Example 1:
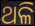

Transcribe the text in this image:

ଥଳି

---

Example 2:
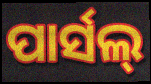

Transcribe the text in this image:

ପାର୍ସଲ୍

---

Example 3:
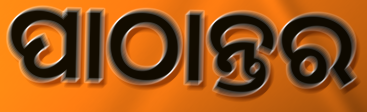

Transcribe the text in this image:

ପାଠାନ୍ତର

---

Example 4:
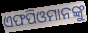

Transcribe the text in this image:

ଏଫପିଓମାନଙ୍କୁ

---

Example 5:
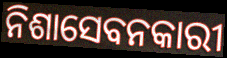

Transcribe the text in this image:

ନିଶାସେବନକାରୀ